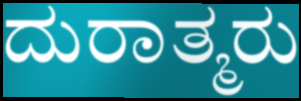
ದುರಾತ್ಮರು